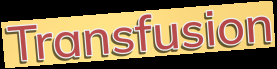
Transfusion